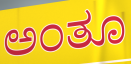
ಅಂತೂ